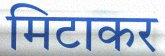
मिटाकर